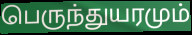
பெருந்துயரமும்